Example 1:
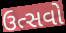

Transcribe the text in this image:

ઉત્સવો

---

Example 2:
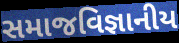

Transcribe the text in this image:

સમાજવિજ્ઞાનીય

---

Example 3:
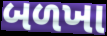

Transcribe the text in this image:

બળખા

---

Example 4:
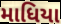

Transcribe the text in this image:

માધિયા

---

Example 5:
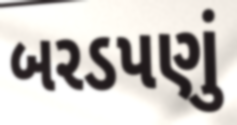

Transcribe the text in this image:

બરડપણું